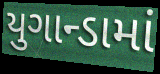
યુગાન્ડામાં